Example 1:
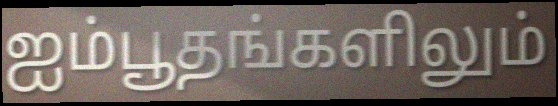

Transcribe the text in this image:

ஐம்பூதங்களிலும்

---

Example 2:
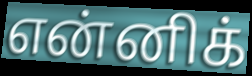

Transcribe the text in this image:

என்னிக்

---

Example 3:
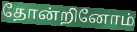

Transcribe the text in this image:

தோன்றினோம்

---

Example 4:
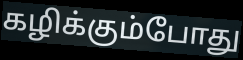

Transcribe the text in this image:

கழிக்கும்போது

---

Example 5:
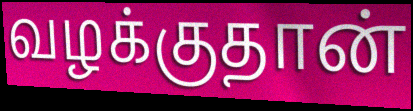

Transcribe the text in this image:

வழக்குதான்